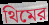
থিমের